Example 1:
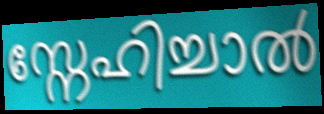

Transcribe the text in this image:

സ്നേഹിച്ചാൽ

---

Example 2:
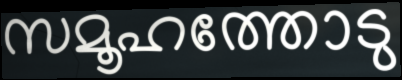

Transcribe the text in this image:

സമൂഹത്തോടു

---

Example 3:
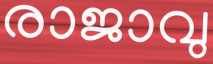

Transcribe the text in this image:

രാജാവു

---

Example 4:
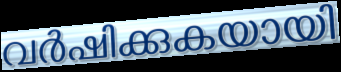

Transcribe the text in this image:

വർഷിക്കുകയായി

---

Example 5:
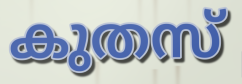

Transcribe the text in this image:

കുതസ്